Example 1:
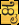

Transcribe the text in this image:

ಹೈ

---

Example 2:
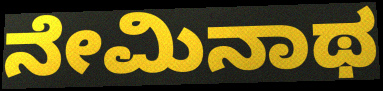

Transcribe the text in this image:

ನೇಮಿನಾಥ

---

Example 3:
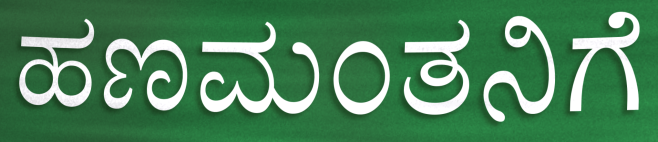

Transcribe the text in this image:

ಹಣಮಂತನಿಗೆ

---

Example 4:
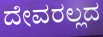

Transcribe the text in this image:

ದೇವರಲ್ಲದ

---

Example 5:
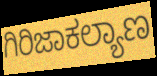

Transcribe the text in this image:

ಗಿರಿಜಾಕಲ್ಯಾಣ